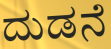
ದುಡನೆ